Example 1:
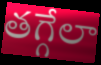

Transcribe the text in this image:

తగ్గేలా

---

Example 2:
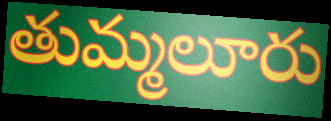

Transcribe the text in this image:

తుమ్మలూరు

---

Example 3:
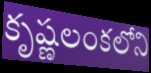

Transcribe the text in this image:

కృష్ణలంకలోని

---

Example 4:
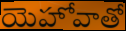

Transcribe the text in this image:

యెహోవాతో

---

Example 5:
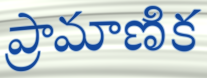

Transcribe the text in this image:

ప్రామాణిక